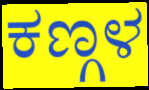
ಕಣ್ಗಳ